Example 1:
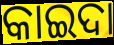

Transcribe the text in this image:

କାଇଦା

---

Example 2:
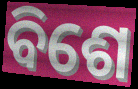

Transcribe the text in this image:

ବିଶେ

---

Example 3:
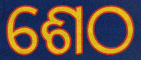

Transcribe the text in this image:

ଶେଠ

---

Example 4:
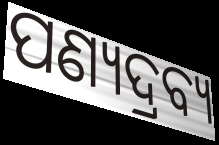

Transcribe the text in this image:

ପଣ୍ୟଦ୍ରବ୍ୟ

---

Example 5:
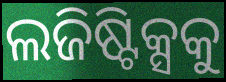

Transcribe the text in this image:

ଲଜିଷ୍ଟିକ୍ସକୁ